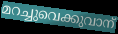
മറച്ചുവെക്കുവാന്